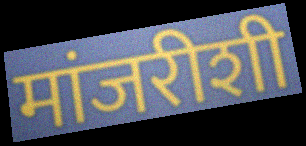
मांजरीशी